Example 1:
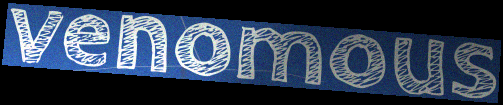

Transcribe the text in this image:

venomous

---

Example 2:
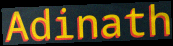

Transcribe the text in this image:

Adinath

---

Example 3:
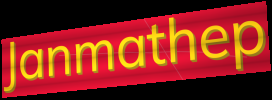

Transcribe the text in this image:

Janmathep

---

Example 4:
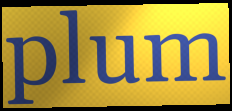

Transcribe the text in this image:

plum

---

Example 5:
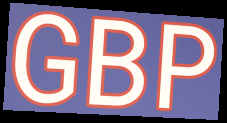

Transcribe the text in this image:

GBP